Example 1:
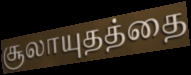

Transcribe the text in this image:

சூலாயுதத்தை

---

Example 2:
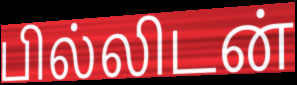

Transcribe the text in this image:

பில்லிடன்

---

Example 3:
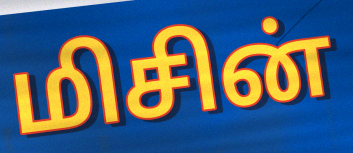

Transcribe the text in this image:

மிசின்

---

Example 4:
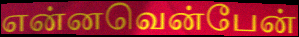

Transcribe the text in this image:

என்னவென்பேன்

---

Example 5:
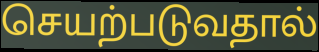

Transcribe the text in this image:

செயற்படுவதால்